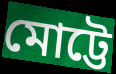
মোট্টে